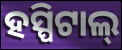
ହସ୍ପିଟାଲ୍